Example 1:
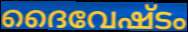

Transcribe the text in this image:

ദൈവേഷ്ടം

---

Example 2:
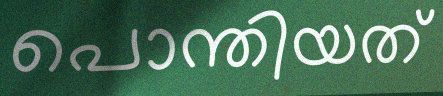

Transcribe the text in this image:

പൊന്തിയത്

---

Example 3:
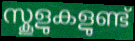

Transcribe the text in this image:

സ്കൂളുകളുണ്ട്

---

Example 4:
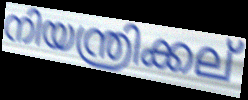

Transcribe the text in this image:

നിയന്ത്രിക്കല്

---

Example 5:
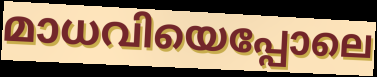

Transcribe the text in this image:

മാധവിയെപ്പോലെ